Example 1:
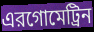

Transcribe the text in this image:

এরগোমেট্রিন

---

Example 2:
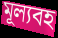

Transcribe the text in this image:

মূল্যবহ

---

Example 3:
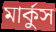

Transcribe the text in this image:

মার্কুস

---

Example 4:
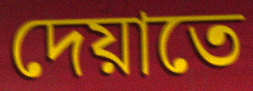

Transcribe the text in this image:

দেয়াতে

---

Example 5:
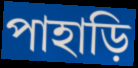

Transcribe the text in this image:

পাহাড়ি